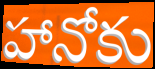
హానోకు